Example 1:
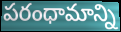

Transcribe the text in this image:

పరంధామాన్ని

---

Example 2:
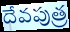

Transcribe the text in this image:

దేవపుత్ర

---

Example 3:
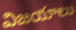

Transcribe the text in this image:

విజయాలు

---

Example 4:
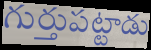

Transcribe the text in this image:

గుర్తుపట్టాడు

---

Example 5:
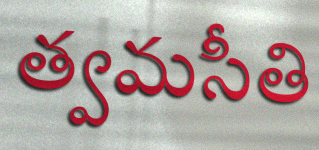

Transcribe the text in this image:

త్వమసీతి